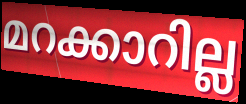
മറക്കാറില്ല